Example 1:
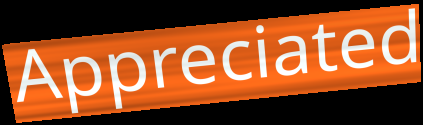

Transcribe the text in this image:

Appreciated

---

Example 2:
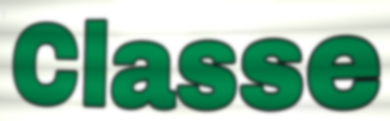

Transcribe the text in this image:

Classe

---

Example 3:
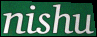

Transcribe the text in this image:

nishu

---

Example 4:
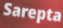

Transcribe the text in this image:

Sarepta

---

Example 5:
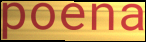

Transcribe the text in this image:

poena